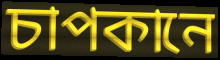
চাপকানে